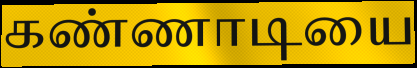
கண்ணாடியை